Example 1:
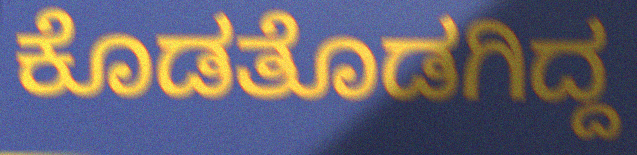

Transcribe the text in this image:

ಕೊಡತೊಡಗಿದ್ದ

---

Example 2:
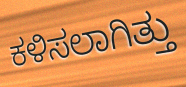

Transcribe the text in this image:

ಕಳಿಸಲಾಗಿತ್ತು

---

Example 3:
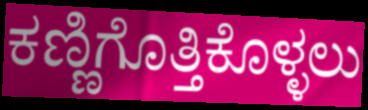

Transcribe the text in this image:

ಕಣ್ಣಿಗೊತ್ತಿಕೊಳ್ಳಲು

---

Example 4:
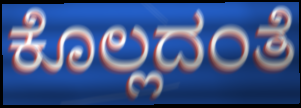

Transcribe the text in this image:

ಕೊಲ್ಲದಂತೆ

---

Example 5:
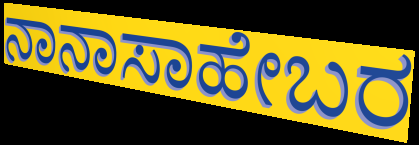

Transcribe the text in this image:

ನಾನಾಸಾಹೇಬರ